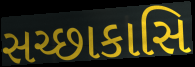
સચ્છાકાસિ